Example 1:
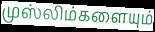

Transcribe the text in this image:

முஸ்லிம்களையும்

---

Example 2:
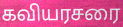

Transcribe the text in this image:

கவியரசரை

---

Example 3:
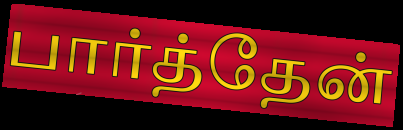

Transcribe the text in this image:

பார்த்தேன்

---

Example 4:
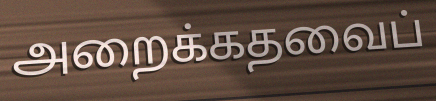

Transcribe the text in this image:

அறைக்கதவைப்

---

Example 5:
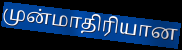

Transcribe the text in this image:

முன்மாதிரியான